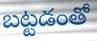
బట్టడంతో